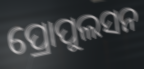
ପ୍ରୋପୁଲସନ